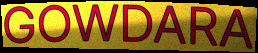
GOWDARA